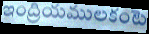
ఇంద్రియములకంటె